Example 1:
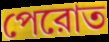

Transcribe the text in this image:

পেরোত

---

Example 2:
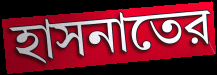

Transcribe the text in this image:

হাসনাতের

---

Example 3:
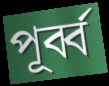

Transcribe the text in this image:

পূর্ব্ব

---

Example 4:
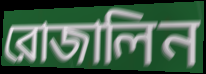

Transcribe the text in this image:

রোজালিন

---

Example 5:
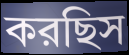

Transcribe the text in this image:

করছিস